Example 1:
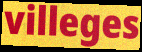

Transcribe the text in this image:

villeges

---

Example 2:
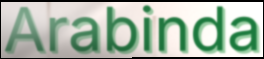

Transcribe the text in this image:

Arabinda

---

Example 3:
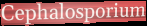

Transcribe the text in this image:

Cephalosporium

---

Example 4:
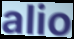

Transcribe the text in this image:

alio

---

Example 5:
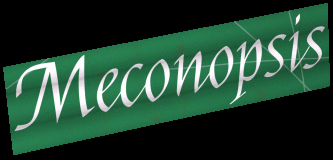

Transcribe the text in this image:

Meconopsis